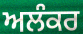
ਅਲੰਕਰ